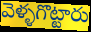
వెళ్ళగొట్టారు